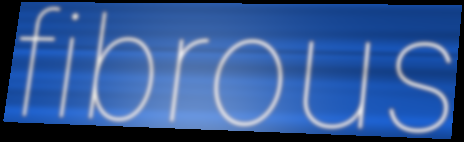
fibrous